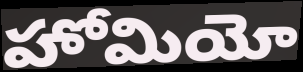
హోమియో